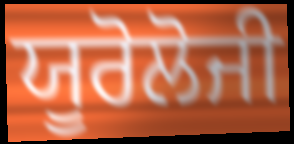
ਯੂਰੋਲੋਜੀ